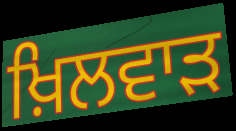
ਖ਼ਿਲਵਾੜ